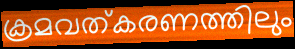
ക്രമവത്കരണത്തിലും